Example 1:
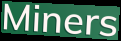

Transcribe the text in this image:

Miners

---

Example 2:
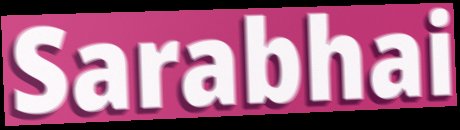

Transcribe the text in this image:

Sarabhai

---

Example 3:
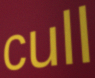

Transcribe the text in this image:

cull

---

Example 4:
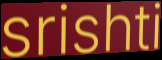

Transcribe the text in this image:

srishti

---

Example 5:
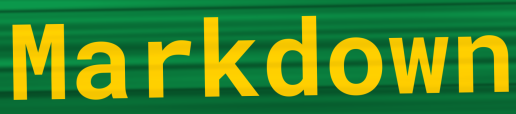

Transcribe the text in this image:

Markdown